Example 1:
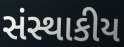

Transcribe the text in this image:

સંસ્થાકીય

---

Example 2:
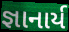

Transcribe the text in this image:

જ્ઞાનાર્ય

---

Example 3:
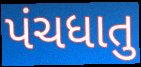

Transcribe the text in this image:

પંચધાતુ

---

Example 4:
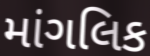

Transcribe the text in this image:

માંગલિક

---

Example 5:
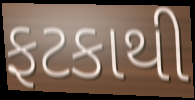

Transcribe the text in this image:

ફટકાથી